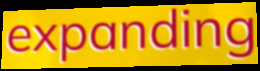
expanding